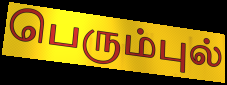
பெரும்புல்